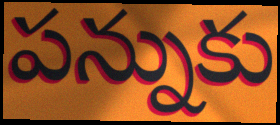
పన్నుకు